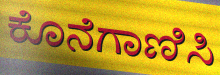
ಕೊನೆಗಾಣಿಸಿ